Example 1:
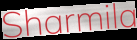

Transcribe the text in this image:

Sharmila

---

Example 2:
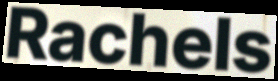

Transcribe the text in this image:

Rachels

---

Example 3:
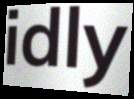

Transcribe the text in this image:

idly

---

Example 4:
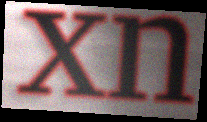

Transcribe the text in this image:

xn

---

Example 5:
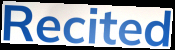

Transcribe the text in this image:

Recited